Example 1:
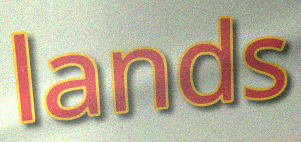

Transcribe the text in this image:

lands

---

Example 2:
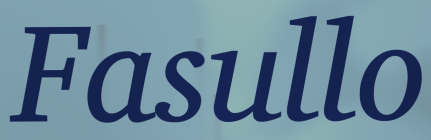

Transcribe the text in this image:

Fasullo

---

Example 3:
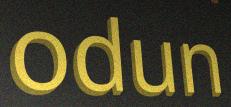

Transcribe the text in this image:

odun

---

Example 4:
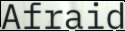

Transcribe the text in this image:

Afraid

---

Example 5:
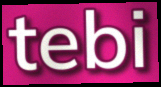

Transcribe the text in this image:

tebi